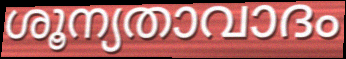
ശൂന്യതാവാദം